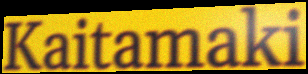
Kaitamaki